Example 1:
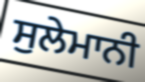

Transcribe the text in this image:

ਸੁਲੇਮਾਨੀ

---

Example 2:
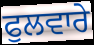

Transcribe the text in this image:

ਫੁਲਵਾਰੇ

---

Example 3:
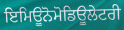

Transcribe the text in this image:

ਇਮਿਊਨੋਮੋਡਿਊਲੇਟਰੀ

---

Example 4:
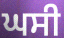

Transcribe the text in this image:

ਘਸੀ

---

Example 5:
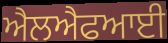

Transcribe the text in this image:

ਐਲਐਫਆਈ